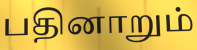
பதினாறும்